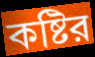
কষ্টির